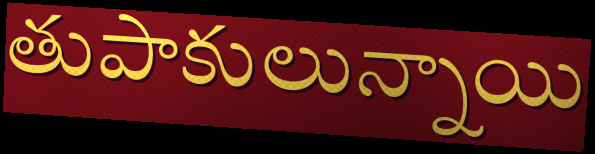
తుపాకులున్నాయి